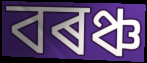
বৰঞ্চ